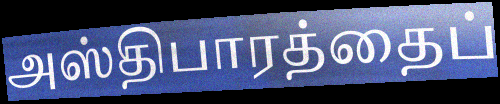
அஸ்திபாரத்தைப்